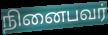
நினைபவர்